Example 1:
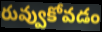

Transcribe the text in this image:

రువ్వుకోవడం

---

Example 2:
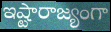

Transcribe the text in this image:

ఇష్టారాజ్యంగా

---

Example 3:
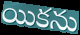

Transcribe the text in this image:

యికను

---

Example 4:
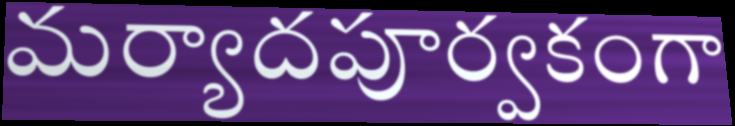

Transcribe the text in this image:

మర్యాదపూర్వకంగా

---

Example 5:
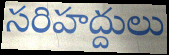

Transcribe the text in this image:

సరిహద్దులు